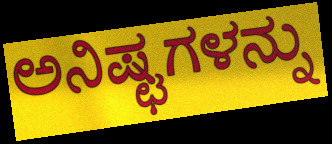
ಅನಿಷ್ಟಗಳನ್ನು